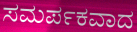
ಸಮರ್ಪಕವಾದ